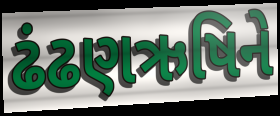
ઢંઢણઋષિને